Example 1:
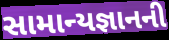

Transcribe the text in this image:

સામાન્યજ્ઞાનની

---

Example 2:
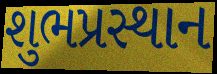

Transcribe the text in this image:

શુભપ્રસ્થાન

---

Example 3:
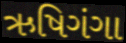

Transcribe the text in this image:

ઋષિગંગા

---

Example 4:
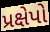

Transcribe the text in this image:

પ્રક્ષેપો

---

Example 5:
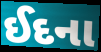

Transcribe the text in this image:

ઈદના